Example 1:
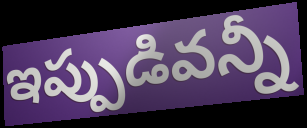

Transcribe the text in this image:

ఇప్పుడివన్నీ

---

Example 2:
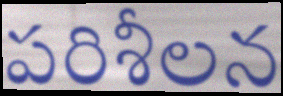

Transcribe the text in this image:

పరిశీలన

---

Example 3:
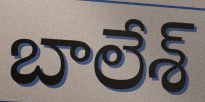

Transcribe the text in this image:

బాలేశ్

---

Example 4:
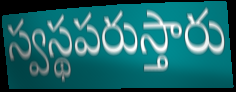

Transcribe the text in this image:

స్వస్థపరుస్తారు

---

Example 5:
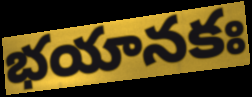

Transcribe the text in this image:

భయానకః